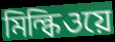
মিল্কিওয়ে